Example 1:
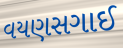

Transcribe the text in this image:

વયણસગાઈ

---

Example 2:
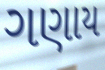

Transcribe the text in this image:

ગણાય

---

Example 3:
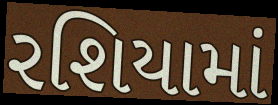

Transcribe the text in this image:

રશિયામાં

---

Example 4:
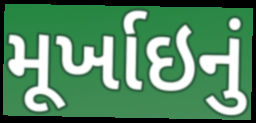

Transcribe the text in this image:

મૂર્ખાઇનું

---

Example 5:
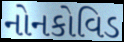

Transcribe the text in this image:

નોનકોવિડ